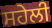
ਸਹੇਲੀ